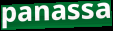
panassa